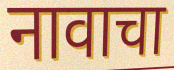
नावाचा